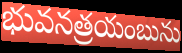
భువనత్రయంబును